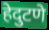
हेदुटणे